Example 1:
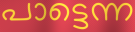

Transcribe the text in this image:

പാട്ടെന്ന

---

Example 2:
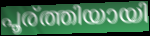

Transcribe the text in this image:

പൂര്ത്തിയായി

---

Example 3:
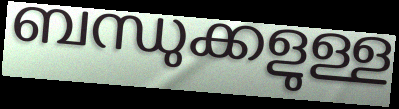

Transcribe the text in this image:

ബന്ധുക്കളുള്ള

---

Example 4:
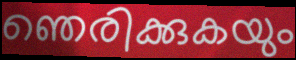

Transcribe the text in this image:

ഞെരിക്കുകയും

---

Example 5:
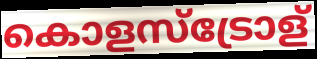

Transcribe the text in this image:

കൊളസ്ട്രോള്